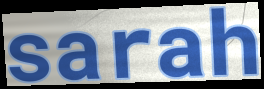
sarah